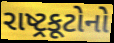
રાષ્ટ્રકૂટોનો